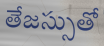
తేజస్సుతో